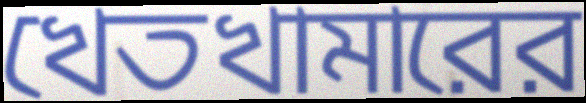
খেতখামারের